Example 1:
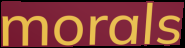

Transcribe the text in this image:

morals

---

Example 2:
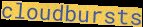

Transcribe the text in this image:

cloudbursts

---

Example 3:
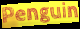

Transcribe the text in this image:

Penguin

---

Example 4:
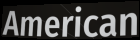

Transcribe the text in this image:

American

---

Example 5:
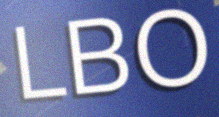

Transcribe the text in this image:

LBO